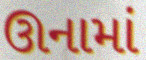
ઊનામાં